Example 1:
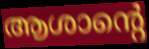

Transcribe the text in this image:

ആശാന്റെ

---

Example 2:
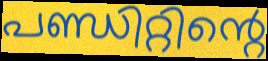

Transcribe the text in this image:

പണ്ഡിറ്റിന്റെ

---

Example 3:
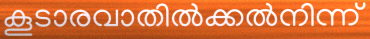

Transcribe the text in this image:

കൂടാരവാതിൽക്കൽനിന്ന്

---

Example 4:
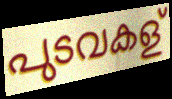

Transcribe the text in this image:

പുടവകള്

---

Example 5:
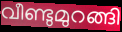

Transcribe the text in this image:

വീണ്ടുമുറങ്ങി